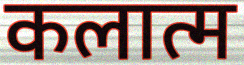
कलात्म